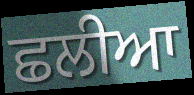
ਛਲੀਆ